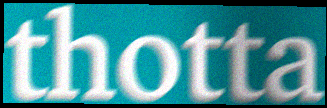
thotta